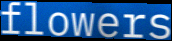
flowers